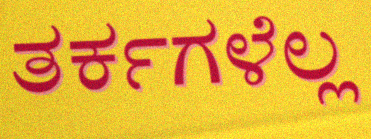
ತರ್ಕಗಳೆಲ್ಲ